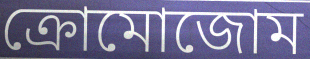
ক্রোমোজোম